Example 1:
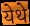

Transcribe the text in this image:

येथे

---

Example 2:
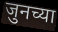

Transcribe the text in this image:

जुनच्या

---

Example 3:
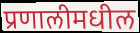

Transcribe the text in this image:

प्रणालीमधील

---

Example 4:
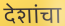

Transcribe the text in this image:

देशांचा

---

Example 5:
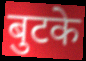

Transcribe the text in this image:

बुटके